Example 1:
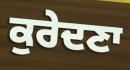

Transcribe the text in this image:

ਕੁਰੇਦਣਾ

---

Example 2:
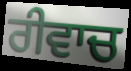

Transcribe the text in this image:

ਰੀਵਾਚ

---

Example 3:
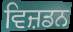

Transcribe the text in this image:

ਵਿਜ਼ਡਨ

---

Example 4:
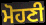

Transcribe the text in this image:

ਮੋਹਣੀ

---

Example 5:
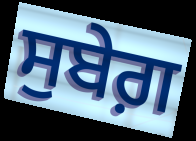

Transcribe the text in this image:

ਸੁਬੇਗ਼